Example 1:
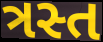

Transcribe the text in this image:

ત્રસ્ત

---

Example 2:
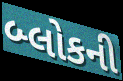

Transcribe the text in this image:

બ્લોકની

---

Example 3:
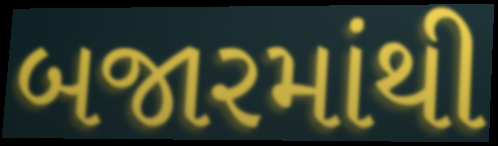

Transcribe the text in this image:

બજારમાંથી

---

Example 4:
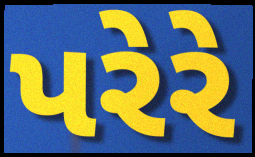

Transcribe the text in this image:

પરેરે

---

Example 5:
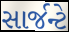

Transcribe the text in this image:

સાર્જન્ટે